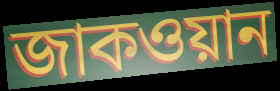
জাকওয়ান